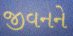
જીવનને